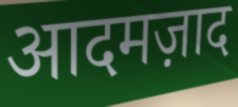
आदमज़ाद